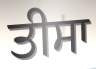
ਤੀਸਾ